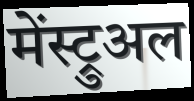
मेंस्ट्रुअल